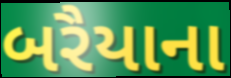
બરૈયાના